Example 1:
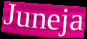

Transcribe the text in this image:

Juneja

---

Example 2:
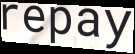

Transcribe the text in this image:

repay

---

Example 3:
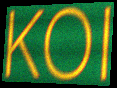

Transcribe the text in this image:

KOI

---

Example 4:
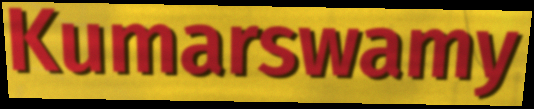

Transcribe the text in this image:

Kumarswamy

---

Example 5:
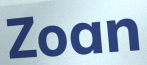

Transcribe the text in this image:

Zoan